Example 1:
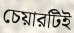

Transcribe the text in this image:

চেয়ারটিই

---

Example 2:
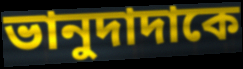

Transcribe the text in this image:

ভানুদাদাকে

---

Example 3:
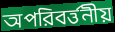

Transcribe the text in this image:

অপরিবর্ত্তনীয়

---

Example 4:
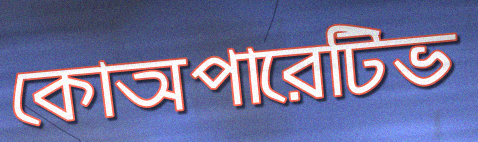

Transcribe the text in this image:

কোঅপারেটিভ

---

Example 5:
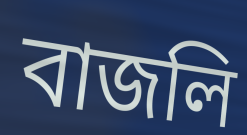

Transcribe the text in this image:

বাজলি